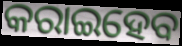
କରାଇହେବ